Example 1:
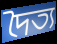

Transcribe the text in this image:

দৈত্য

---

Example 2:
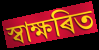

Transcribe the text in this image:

স্বাক্ষৰিত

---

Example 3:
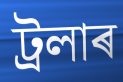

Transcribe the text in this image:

ট্ৰলাৰ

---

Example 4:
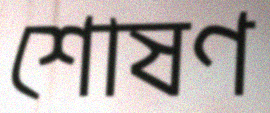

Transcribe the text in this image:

শোষণ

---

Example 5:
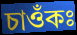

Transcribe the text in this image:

চাওঁকঃ